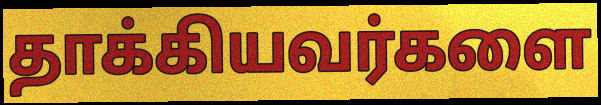
தாக்கியவர்களை